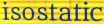
isostatic